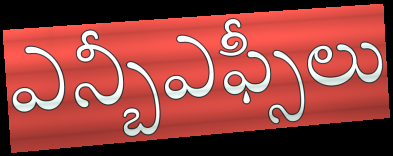
ఎన్బీఎఫ్సీలు